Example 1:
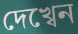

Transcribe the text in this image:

দেখ্বেন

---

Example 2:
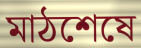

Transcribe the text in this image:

মাঠশেষে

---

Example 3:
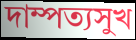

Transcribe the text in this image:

দাম্পত্যসুখ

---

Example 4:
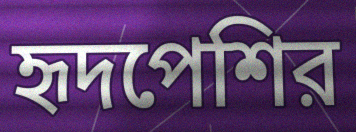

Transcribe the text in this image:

হৃদপেশির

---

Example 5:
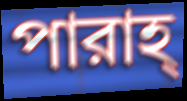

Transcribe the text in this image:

পারাহ্